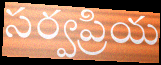
సర్వప్రియ